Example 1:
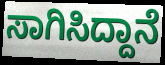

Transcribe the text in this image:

ಸಾಗಿಸಿದ್ದಾನೆ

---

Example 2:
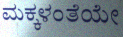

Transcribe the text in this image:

ಮಕ್ಕಳಂತೆಯೇ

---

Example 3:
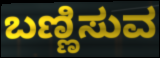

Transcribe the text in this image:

ಬಣ್ಣಿಸುವ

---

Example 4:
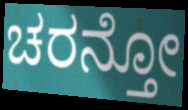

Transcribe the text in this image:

ಚರನ್ತೋ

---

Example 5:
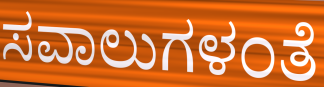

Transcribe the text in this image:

ಸವಾಲುಗಳಂತೆ